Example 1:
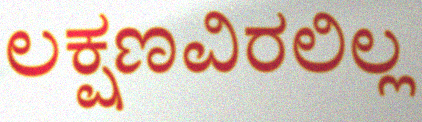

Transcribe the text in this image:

ಲಕ್ಷಣವಿರಲಿಲ್ಲ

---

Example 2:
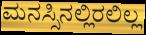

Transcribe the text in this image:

ಮನಸ್ಸಿನಲ್ಲಿರಲಿಲ್ಲ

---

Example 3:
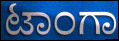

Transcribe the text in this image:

ಟಾಂಗಾ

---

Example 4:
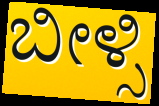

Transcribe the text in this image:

ಬೀಳ್ಸಿ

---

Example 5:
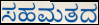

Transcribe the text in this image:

ಸಹಮತದ